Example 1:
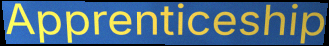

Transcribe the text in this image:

Apprenticeship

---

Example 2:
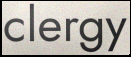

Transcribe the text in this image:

clergy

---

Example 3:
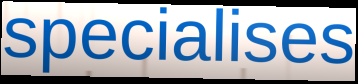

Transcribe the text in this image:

specialises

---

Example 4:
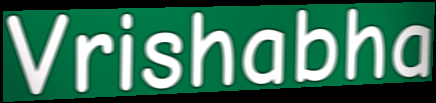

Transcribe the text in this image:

Vrishabha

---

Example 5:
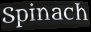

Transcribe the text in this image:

Spinach